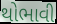
થોભાવી